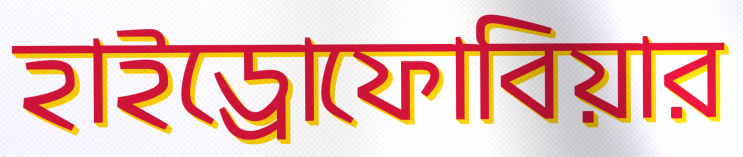
হাইড্রোফোবিয়ার